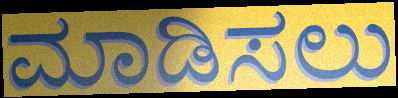
ಮಾಡಿಸಲು